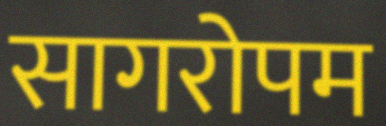
सागरोपम